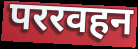
पररवहन